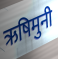
ऋषिमुनी